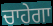
ਚਾਹੇਗਾ